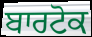
ਬਾਰਟੋਕ